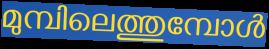
മുമ്പിലെത്തുമ്പോൾ